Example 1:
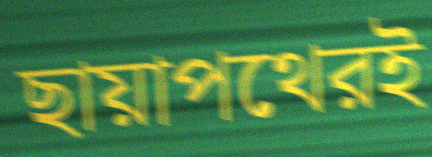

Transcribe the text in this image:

ছায়াপথেরই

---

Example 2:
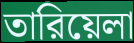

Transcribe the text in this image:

তারিয়েলা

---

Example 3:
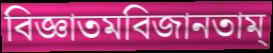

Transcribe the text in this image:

বিজ্ঞাতমবিজানতাম্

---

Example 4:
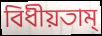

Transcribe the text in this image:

বিধীয়তাম্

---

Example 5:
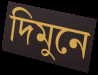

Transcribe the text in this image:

দিমুনে